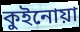
কুইনোয়া